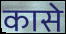
कासे